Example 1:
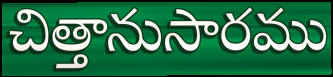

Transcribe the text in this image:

చిత్తానుసారము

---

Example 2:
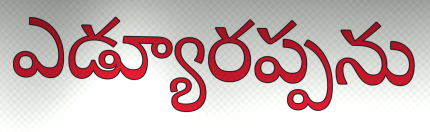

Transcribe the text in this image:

ఎడ్యూరప్పను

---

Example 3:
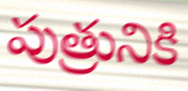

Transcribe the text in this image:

పుత్రునికి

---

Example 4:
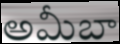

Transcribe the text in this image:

అమీబా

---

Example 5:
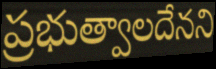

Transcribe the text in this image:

ప్రభుత్వాలదేనని